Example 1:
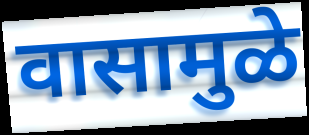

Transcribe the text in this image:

वासामुळे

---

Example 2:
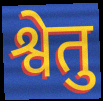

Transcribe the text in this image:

श्वेतु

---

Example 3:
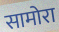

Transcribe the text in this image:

सामोरा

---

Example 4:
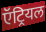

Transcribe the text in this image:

ऍट्रियल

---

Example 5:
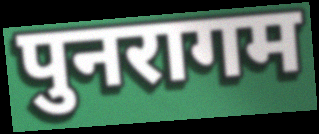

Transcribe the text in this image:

पुनरागम